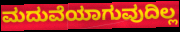
ಮದುವೆಯಾಗುವುದಿಲ್ಲ